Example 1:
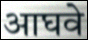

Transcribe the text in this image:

आघवे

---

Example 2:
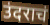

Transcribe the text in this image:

उंदराचं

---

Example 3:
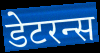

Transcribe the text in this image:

डेटरन्स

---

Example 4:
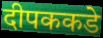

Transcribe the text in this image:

दीपककडे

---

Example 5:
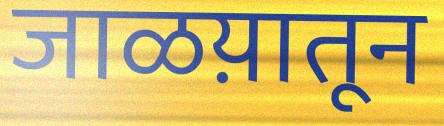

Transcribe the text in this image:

जाळय़ातून